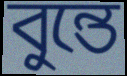
বুন্তে